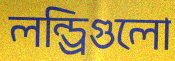
লন্ড্রিগুলো